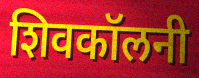
शिवकॉलनी